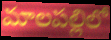
మాలపల్లిలో